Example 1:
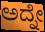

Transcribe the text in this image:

ಅದ್ನೇ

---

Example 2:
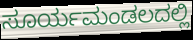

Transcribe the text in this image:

ಸೂರ್ಯಮಂಡಲದಲ್ಲಿ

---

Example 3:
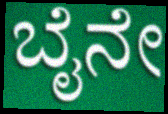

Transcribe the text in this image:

ಬೈನೇ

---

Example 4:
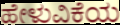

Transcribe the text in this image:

ಹೇಳುವಿಕೆಯ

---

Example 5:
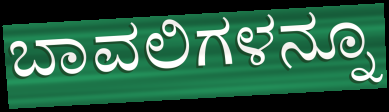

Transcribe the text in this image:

ಬಾವಲಿಗಳನ್ನೂ